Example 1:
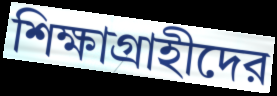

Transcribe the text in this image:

শিক্ষাগ্রাহীদের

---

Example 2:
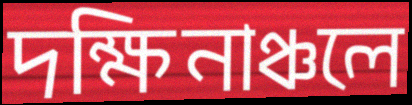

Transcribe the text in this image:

দক্ষিনাঞ্চলে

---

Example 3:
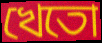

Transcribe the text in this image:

খেতো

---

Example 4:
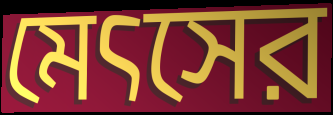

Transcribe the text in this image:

মেৎসের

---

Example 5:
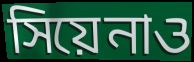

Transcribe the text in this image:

সিয়েনাও